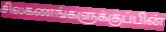
சிலகணங்களுக்குப்பின்